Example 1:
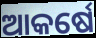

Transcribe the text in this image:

ଆକର୍ଷେ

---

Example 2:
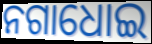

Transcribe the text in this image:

ନଗାଧୋଇ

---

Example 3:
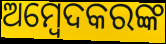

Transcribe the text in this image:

ଅମ୍ବେଦକରଙ୍କ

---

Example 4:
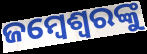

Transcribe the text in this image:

ଜମ୍ବେଶ୍ୱରଙ୍କୁ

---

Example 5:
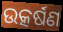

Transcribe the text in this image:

ଉତ୍କର୍ଷଣ